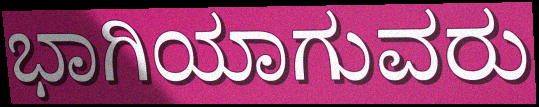
ಭಾಗಿಯಾಗುವರು